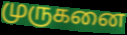
முருகனை